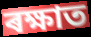
ৰক্ষাত